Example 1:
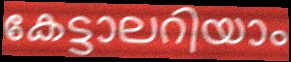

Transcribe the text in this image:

കേട്ടാലറിയാം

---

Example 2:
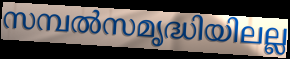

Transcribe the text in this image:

സമ്പൽസമൃദ്ധിയിലല്ല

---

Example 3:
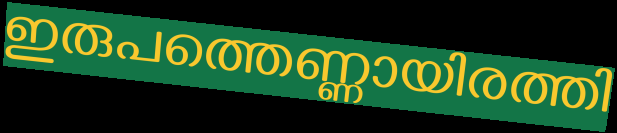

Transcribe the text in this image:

ഇരുപത്തെണ്ണായിരത്തി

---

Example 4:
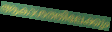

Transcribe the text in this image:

ആകാശത്തിലേക്കും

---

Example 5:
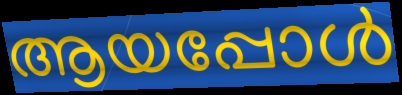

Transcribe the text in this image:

ആയപ്പോൾ